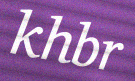
khbr